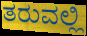
ತರುವಲ್ಲಿ